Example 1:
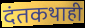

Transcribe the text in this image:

दंतकथाही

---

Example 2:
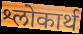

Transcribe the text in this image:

श्लोकार्थ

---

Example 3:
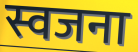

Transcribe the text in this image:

स्वजना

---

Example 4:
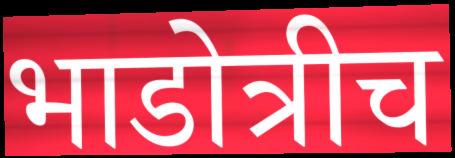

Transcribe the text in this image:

भाडोत्रीच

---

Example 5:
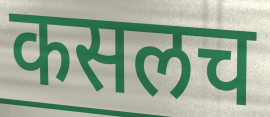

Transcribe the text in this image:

कसलच